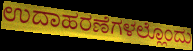
ಉದಾಹರಣೆಗಳಲ್ಲೊಂದು